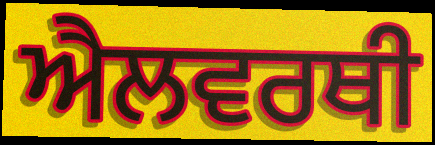
ਐਲਵਰਥੀ